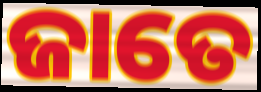
ଜାତେ